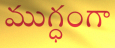
ముగ్ధంగా